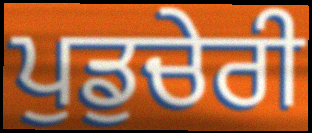
ਪੁਡੁਚੇਰੀ